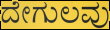
ದೇಗುಲವು